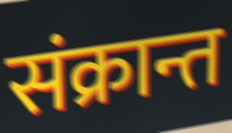
संक्रान्त